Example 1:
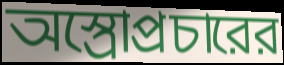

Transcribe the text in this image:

অস্ত্রোপ্রচারের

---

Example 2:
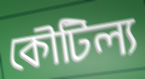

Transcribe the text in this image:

কৌটিল্য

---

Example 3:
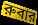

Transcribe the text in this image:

রুবার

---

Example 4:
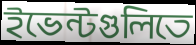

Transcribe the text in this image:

ইভেন্টগুলিতে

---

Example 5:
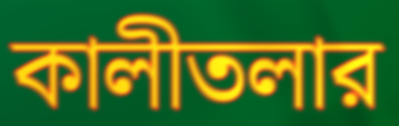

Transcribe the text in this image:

কালীতলার